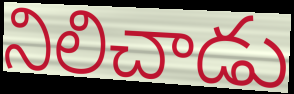
నిలిచాడు